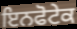
ਇਨਫੋਟੇਕ